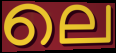
ലെ